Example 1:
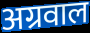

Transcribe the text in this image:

अग्रवाल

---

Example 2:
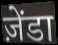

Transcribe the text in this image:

ज़ेंडा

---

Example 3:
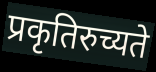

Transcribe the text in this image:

प्रकृतिरुच्यते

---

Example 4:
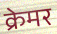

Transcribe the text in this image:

क्रेमर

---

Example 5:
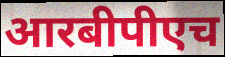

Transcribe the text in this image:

आरबीपीएच